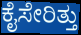
ಕೈಸೇರಿತ್ತು